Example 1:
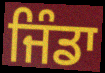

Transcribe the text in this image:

ਜਿੰਡਾ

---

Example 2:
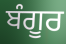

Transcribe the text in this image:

ਬੰਗੂਰ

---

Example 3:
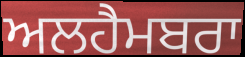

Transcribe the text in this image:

ਅਲਹੈਮਬਰਾ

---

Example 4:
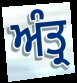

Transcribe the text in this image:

ਅੰਤ੍ਰ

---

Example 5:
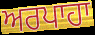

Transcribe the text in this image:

ਅਰਪਾਹਾ